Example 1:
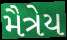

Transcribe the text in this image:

મૈત્રેય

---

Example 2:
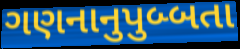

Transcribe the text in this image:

ગણનાનુપુબ્બતા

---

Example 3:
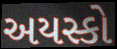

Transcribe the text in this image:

અયસ્કો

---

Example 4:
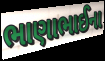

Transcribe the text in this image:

ભાણાભાઈના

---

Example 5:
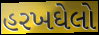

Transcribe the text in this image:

હરખઘેલો